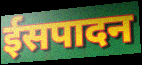
ईसपादन